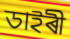
ডাইৰী